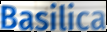
Basilica